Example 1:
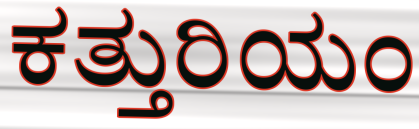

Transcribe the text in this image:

ಕತ್ತುರಿಯಂ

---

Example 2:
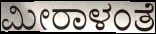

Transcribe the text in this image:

ಮೀರಾಳಂತೆ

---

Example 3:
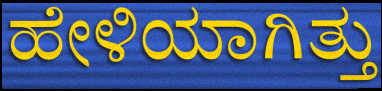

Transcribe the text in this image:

ಹೇಳಿಯಾಗಿತ್ತು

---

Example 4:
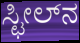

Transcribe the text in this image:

ಸ್ಟೀಲ್‌ನ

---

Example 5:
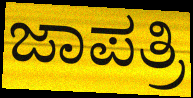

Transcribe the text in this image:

ಜಾಪತ್ರಿ